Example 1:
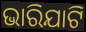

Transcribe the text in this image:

ଭାରିଯାଟି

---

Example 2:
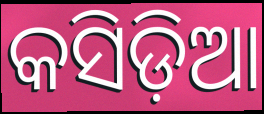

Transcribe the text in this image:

କସିଡ଼ିଆ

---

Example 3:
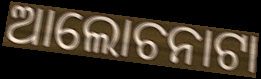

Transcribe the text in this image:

ଆଲୋଚନାଟା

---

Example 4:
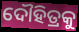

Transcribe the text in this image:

ଦୌହିତ୍ରକୁ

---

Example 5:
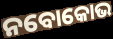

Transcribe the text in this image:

ନବୋକୋଭ